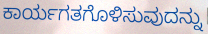
ಕಾರ್ಯಗತಗೊಳಿಸುವುದನ್ನು